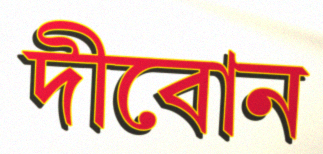
দীবোন